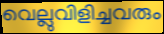
വെല്ലുവിളിച്ചവരും